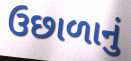
ઉછાળાનું